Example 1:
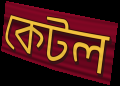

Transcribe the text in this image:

কেটল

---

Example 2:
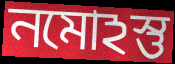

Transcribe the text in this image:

নমোঽস্তু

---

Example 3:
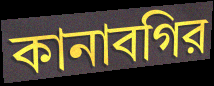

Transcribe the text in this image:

কানাবগির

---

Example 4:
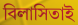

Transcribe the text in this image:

বিলাসিতাই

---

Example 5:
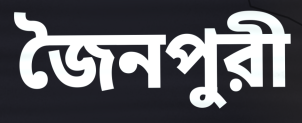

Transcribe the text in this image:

জৈনপুরী